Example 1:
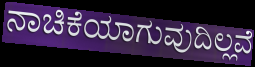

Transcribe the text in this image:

ನಾಚಿಕೆಯಾಗುವುದಿಲ್ಲವೆ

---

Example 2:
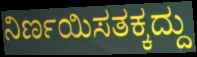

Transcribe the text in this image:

ನಿರ್ಣಯಿಸತಕ್ಕದ್ದು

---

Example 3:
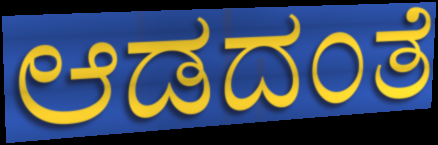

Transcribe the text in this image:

ಆಡದಂತೆ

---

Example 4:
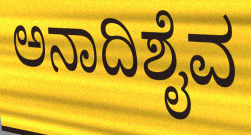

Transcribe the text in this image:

ಅನಾದಿಶೈವ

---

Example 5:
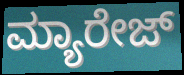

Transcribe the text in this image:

ಮ್ಯಾರೇಜ್